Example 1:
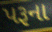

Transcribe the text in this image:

પરૂના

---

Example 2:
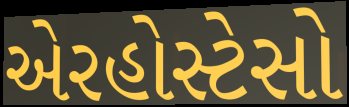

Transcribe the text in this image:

એરહોસ્ટેસો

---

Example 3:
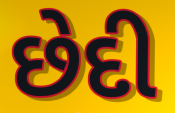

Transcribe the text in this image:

છેદી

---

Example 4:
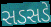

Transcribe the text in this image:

સડસડે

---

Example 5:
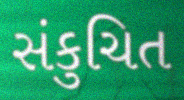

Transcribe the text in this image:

સંકુચિત